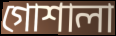
গোশালা